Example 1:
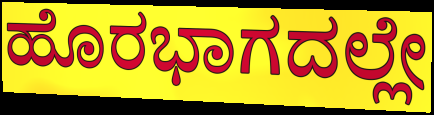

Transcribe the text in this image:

ಹೊರಭಾಗದಲ್ಲೇ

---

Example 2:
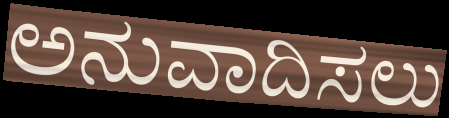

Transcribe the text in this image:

ಅನುವಾದಿಸಲು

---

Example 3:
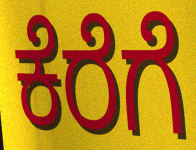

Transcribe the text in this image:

ಕೆರೆಗೆ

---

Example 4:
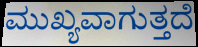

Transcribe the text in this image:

ಮುಖ್ಯವಾಗುತ್ತದೆ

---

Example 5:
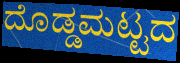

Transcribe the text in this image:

ದೊಡ್ಡಮಟ್ಟದ